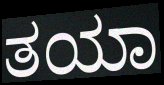
ತಯಾ